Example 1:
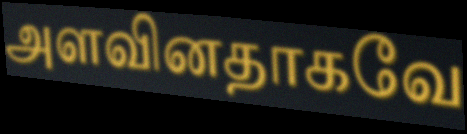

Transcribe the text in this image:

அளவினதாகவே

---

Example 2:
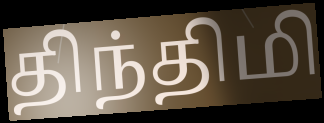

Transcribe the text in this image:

திந்திமி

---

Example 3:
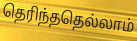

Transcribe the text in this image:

தெரிந்ததெல்லாம்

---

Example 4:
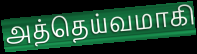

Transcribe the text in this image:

அத்தெய்வமாகி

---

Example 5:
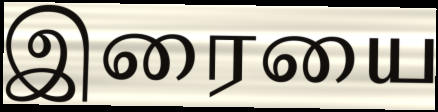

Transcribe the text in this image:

இரையை